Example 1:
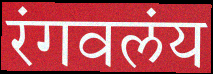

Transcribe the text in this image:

रंगवलंय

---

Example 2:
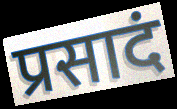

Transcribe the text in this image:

प्रसादं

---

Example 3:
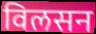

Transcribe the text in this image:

विलसन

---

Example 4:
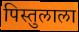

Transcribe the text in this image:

पिस्तुलाला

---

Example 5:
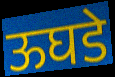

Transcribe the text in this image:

ऊघडे